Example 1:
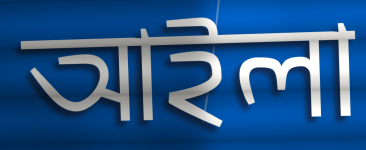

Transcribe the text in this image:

আইলা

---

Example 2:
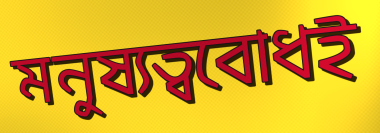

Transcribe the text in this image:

মনুষ্যত্ববোধই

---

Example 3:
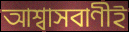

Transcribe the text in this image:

আশ্বাসবাণীই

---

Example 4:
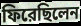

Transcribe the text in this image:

ফিরেছিলেন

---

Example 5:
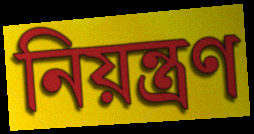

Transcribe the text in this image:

নিয়ন্ত্রণ